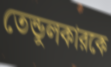
তেন্ডুলকারকে